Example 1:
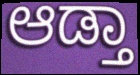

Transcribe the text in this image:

ಆಡ್ತಾ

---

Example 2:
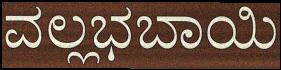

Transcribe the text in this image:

ವಲ್ಲಭಬಾಯಿ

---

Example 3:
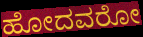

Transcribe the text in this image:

ಹೋದವರೋ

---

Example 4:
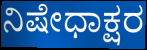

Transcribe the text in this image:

ನಿಷೇಧಾಕ್ಷರ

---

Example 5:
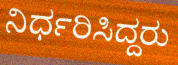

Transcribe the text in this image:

ನಿರ್ಧರಿಸಿದ್ದರು